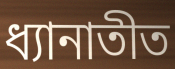
ধ্যানাতীত